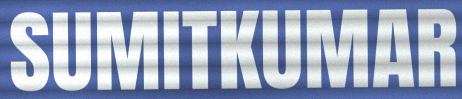
SUMITKUMAR